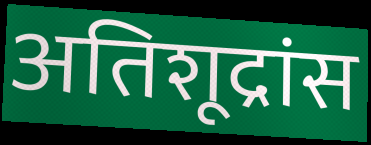
अतिशूद्रांस